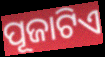
ପୂଜାଟିଏ